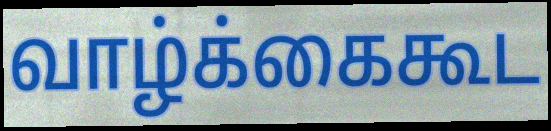
வாழ்க்கைகூட